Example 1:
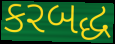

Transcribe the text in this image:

કરબદ્ધ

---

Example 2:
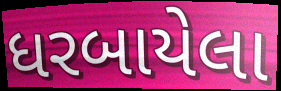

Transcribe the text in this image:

ધરબાયેલા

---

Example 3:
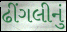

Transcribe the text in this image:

ઢીંગલીનું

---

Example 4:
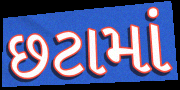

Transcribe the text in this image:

છટામાં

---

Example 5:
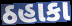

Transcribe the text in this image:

ઠહાકા